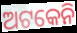
ଅଟକେନି